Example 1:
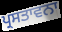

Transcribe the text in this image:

ਪ੍ਰਸਤਾਵਨਾ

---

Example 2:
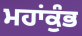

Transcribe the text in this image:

ਮਹਾਂਕੁੰਭ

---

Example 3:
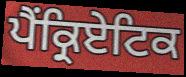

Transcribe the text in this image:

ਪੈਂਕ੍ਰਿਏਟਿਕ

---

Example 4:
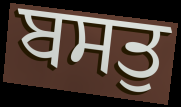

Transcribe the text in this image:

ਬਸਤੁ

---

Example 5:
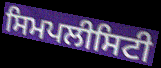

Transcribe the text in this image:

ਸਿਮਪਲੀਸਿਟੀ